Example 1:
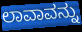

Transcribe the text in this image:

ಲಾವಾವನ್ನು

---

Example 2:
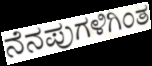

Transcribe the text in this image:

ನೆನಪುಗಳಿಗಿಂತ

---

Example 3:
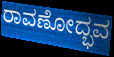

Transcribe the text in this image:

ರಾವಣೋದ್ಭವ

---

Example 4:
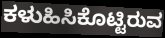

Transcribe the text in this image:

ಕಳುಹಿಸಿಕೊಟ್ಟಿರುವ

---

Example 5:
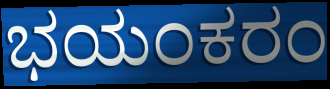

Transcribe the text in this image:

ಭಯಂಕರಂ